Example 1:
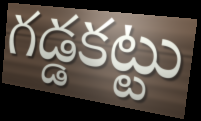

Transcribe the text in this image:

గడ్డకట్టు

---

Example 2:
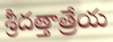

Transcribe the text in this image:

శ్రీదత్తాత్రేయ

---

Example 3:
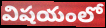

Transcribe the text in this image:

విషయంలో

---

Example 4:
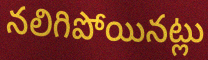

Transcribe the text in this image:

నలిగిపోయినట్లు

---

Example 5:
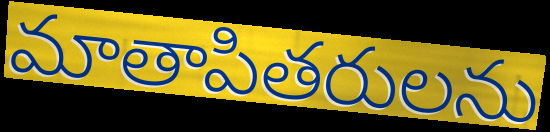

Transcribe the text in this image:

మాతాపితరులను